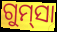
ଗୁମ୍‌ସା